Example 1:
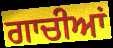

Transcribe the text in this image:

ਗਾਚੀਆਂ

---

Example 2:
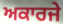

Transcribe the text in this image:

ਅਕਾਰਜੇ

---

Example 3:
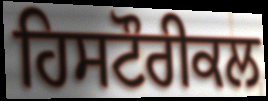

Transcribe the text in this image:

ਹਿਸਟੌਰੀਕਲ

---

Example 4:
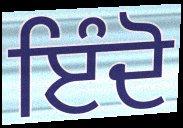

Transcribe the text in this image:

ਇੰਦੋ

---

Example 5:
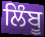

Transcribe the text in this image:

ਲਿੰਬੂ